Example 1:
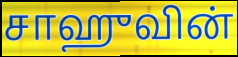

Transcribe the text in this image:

சாஹுவின்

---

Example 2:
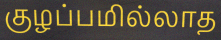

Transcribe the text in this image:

குழப்பமில்லாத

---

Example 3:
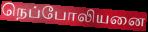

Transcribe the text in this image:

நெப்போலியனை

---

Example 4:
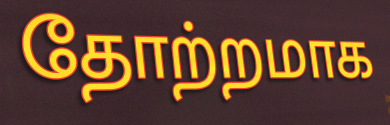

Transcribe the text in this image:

தோற்றமாக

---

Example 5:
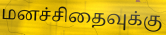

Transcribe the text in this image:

மனச்சிதைவுக்கு